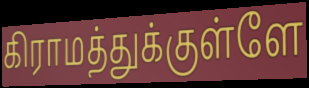
கிராமத்துக்குள்ளே